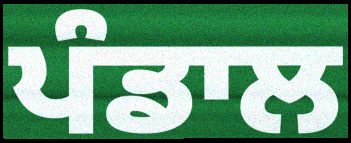
ਪੰਡਾਲ